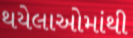
થયેલાઓમાંથી